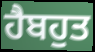
ਹੈਬਹੁਤ